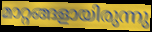
മാറ്റങ്ങളായിരുന്നു